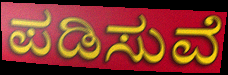
ಪಡಿಸುವೆ